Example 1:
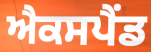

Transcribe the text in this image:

ਐਕਸਪੈਂਡ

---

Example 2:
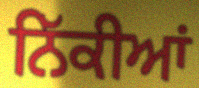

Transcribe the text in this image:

ਨਿੱਕੀਆਂ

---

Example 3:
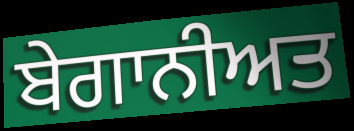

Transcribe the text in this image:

ਬੇਗਾਨੀਅਤ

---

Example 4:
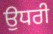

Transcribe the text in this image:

ਉਧਰੀ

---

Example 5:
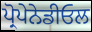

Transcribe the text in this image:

ਪ੍ਰੋਪੇਨੇਡੀਓਲ